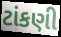
ટાંકણી